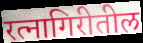
रत्नागिरीतील